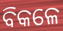
ବିକଳେ